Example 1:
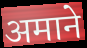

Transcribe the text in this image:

अमाने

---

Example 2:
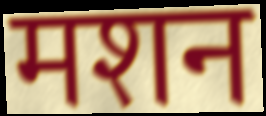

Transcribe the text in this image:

मशन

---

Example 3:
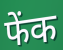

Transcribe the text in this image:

फेंक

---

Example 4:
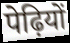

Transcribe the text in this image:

पेढ़ियों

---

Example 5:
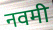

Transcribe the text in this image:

नवमी